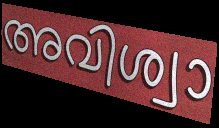
അവിശ്വാ